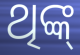
ଥିଙ୍କ୍